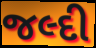
જલ્દી